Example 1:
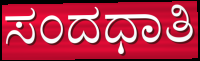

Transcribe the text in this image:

ಸಂದಧಾತಿ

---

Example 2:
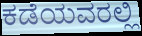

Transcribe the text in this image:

ಕಡೆಯವರಲ್ಲಿ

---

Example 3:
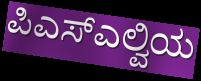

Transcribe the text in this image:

ಪಿಎಸ್ಎಲ್ವಿಯ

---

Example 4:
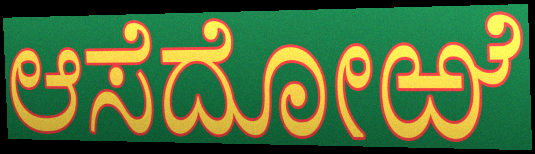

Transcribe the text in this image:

ಆಸೆದೋಱೆ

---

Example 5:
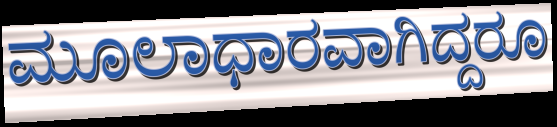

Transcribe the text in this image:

ಮೂಲಾಧಾರವಾಗಿದ್ದರೂ